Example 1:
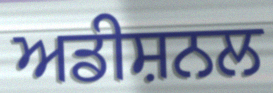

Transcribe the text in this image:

ਅਡੀਸ਼ਨਲ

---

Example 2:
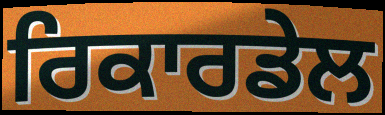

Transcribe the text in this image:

ਰਿਕਾਰਡੇਲ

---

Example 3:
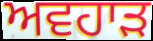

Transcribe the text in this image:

ਅਵਹਾੜ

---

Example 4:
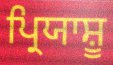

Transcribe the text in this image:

ਪ੍ਰਿਯਾਸ਼ੂ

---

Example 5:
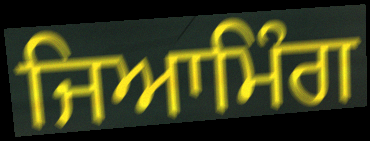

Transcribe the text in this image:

ਜਿਆਮਿੰਗ